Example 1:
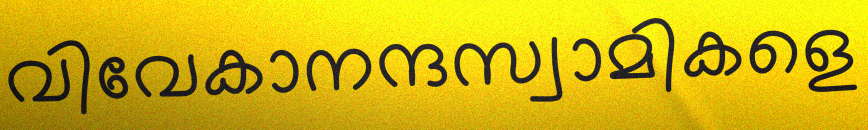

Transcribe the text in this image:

വിവേകാനന്ദസ്വാമികളെ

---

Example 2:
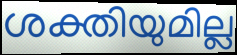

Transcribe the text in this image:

ശക്തിയുമില്ല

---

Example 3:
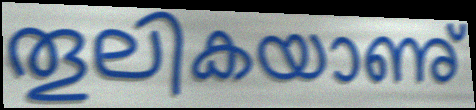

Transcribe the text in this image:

തൂലികയാണു്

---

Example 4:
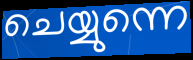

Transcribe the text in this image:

ചെയ്യുന്നെ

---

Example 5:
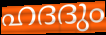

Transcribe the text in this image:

ഹദദും